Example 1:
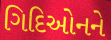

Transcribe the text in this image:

ગિદિઓનને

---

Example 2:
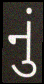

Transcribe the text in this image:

નું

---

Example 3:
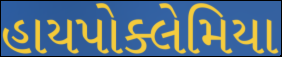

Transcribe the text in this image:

હાયપોક્લેમિયા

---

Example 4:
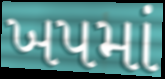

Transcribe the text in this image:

ખપમાં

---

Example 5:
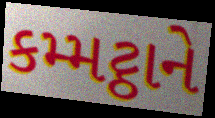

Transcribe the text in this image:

કમ્મટ્ઠાને